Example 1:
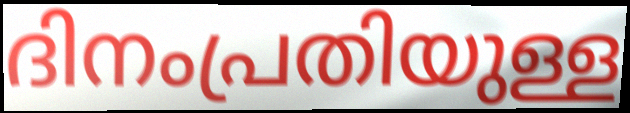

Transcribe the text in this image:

ദിനംപ്രതിയുള്ള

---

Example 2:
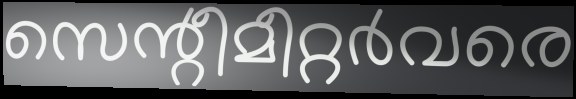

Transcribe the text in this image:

സെന്റീമീറ്റർവരെ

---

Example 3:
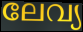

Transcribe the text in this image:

ലേവ്യ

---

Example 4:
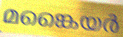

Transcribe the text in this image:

മങ്കൈയർ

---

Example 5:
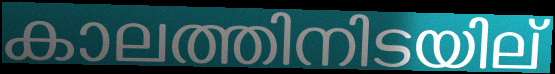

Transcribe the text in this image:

കാലത്തിനിടയില്